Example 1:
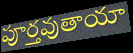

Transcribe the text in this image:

పూర్తవుతాయా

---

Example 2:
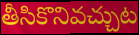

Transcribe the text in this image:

తీసికొనివచ్చుట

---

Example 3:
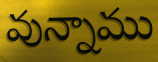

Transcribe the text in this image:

వున్నాము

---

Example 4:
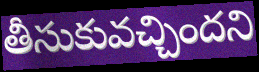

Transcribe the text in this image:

తీసుకువచ్చిందని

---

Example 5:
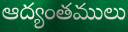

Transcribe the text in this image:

ఆద్యంతములు